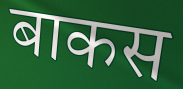
बाकस